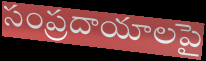
సంప్రదాయాలపై